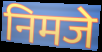
निमजे